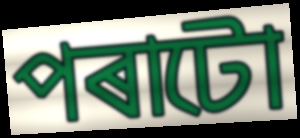
পৰাটো